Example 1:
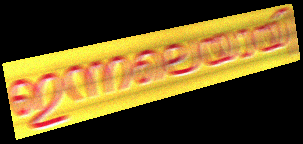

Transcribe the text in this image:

ഇന്നലെയായി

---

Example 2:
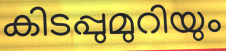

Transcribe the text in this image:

കിടപ്പുമുറിയും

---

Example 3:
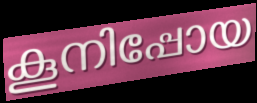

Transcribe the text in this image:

കൂനിപ്പോയ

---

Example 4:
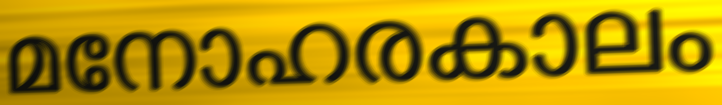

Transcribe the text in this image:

മനോഹരകാലം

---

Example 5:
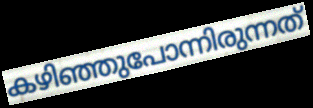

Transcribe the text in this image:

കഴിഞ്ഞുപോന്നിരുന്നത്